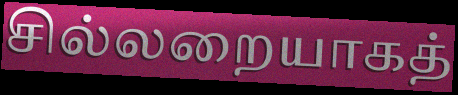
சில்லறையாகத்